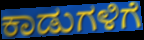
ಕಾಡುಗಳಿಗೆ